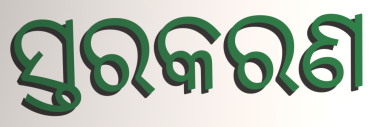
ସ୍ତରକରଣ